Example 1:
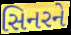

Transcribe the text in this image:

સિનરને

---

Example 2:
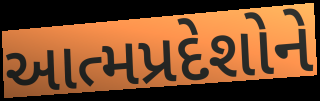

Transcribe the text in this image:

આત્મપ્રદેશોને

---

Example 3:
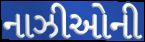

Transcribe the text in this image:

નાઝીઓની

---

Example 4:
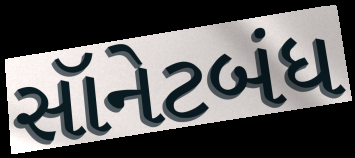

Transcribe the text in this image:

સૉનેટબંધ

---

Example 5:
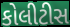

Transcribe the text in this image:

કોલીટીસ